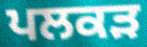
ਪਲਕੜ